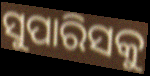
ସୁପାରିସକୁ